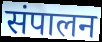
संपालन